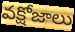
వక్షోజాలు